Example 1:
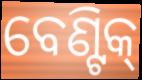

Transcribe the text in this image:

ବେଣ୍ଟିକ୍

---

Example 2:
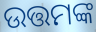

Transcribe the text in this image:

ଉତ୍ତମଙ୍କ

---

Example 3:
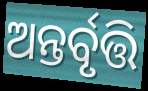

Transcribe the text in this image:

ଅନ୍ତର୍ବୃତ୍ତି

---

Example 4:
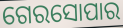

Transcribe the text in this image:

ଗେରସୋପାର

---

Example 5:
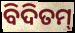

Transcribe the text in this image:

ବିଦିତମ୍